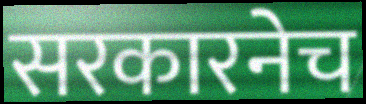
सरकारनेच